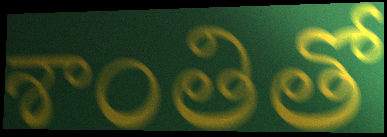
శాంతితో